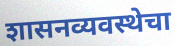
शासनव्यवस्थेचा